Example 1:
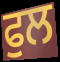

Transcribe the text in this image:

ਫੁਲ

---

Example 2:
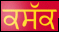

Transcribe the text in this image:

ਕਸੱਕ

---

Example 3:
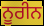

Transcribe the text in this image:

ਨੂਰੀਨ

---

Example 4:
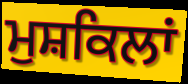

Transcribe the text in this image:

ਮੁਸ਼ਕਿਲਾਂ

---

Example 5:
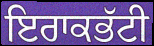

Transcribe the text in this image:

ਇਰਾਕਭੱਟੀ